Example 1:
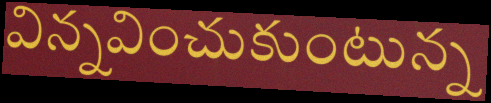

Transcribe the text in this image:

విన్నవించుకుంటున్న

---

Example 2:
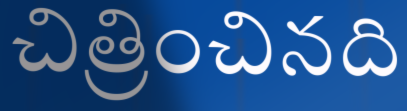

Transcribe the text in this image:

చిత్రించినది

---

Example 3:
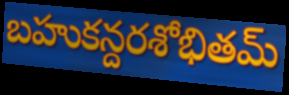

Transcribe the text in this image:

బహుకన్దరశోభితమ్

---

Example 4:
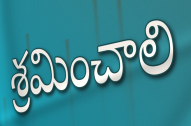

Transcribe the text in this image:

శ్రమించాలి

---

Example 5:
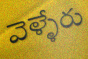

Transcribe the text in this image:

వెళ్ళేరు